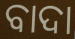
ବାଦା